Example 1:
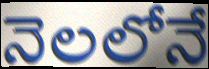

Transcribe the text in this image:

నెలలోనే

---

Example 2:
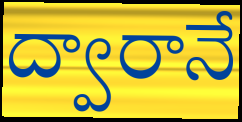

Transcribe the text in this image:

ద్వారానే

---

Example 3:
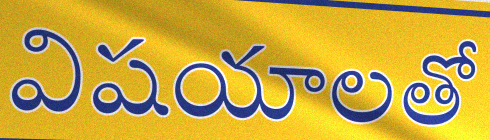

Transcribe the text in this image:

విషయాలతో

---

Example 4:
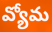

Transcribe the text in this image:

వ్యోమ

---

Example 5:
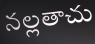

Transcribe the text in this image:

నల్లతాచు